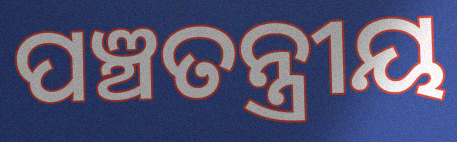
ପଞ୍ଚତନ୍ତ୍ରୀୟ